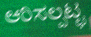
ಆರಿಸಲ್ಪಟ್ಟ